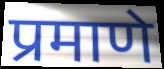
प्रमाणे